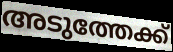
അടുത്തേക്ക്